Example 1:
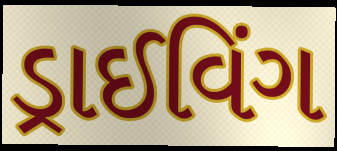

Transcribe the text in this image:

ડ્રાઈવિંગ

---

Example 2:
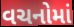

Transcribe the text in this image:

વચનોમાં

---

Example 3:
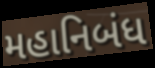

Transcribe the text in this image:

મહાનિબંધ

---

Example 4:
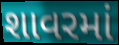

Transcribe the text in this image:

શાવરમાં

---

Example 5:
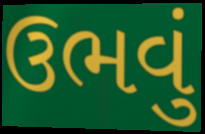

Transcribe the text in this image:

ઉભવું